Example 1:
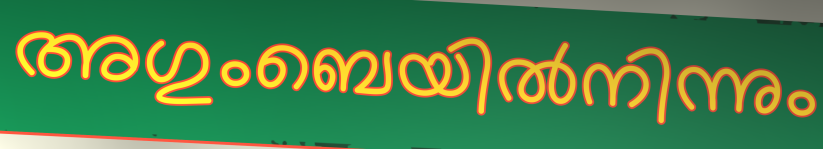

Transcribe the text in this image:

അഗുംബെയിൽനിന്നും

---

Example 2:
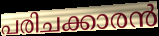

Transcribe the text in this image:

പരിചക്കാരൻ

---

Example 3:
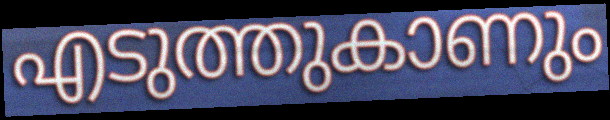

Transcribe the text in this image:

എടുത്തുകാണും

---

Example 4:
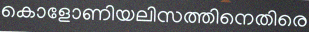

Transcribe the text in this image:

കൊളോണിയലിസത്തിനെതിരെ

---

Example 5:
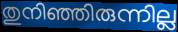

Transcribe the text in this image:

തുനിഞ്ഞിരുന്നില്ല